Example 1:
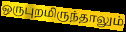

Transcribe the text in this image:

ஒருபுறமிருந்தாலும்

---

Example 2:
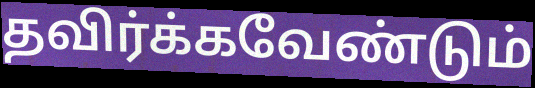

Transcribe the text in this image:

தவிர்க்கவேண்டும்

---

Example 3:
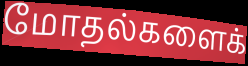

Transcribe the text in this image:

மோதல்களைக்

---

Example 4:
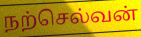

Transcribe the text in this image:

நற்செல்வன்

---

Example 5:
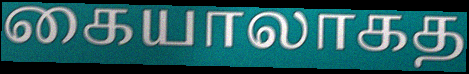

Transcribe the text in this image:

கையாலாகத